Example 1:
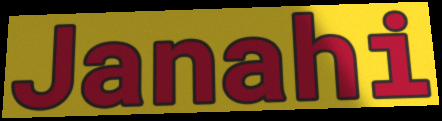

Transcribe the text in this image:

Janahi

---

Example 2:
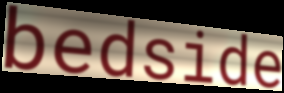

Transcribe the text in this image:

bedside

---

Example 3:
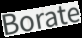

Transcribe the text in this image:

Borate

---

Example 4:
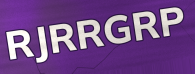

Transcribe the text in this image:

RJRRGRP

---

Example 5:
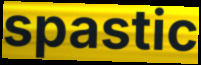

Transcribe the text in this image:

spastic